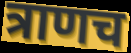
त्राणच